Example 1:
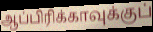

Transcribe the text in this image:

ஆப்பிரிக்காவுக்குப்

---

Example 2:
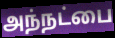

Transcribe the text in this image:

அந்நட்பை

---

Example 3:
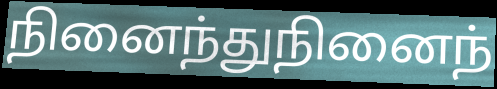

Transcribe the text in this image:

நினைந்துநினைந்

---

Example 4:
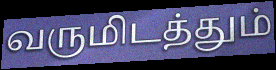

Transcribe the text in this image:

வருமிடத்தும்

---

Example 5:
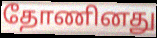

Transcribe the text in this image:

தோணினது